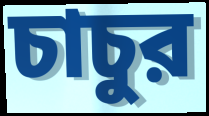
চাচুর